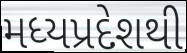
મધ્યપ્રદેશથી